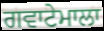
ਗਵਾਟੇਮਾਲਾ